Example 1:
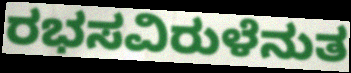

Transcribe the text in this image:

ರಭಸವಿರುಳೆನುತ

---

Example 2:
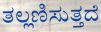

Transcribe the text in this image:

ತಲ್ಲಣಿಸುತ್ತದೆ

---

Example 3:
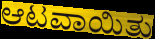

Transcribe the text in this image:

ಆಟವಾಯಿತು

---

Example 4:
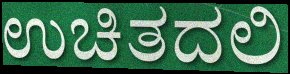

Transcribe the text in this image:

ಉಚಿತದಲಿ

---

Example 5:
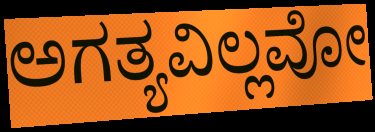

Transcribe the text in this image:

ಅಗತ್ಯವಿಲ್ಲವೋ